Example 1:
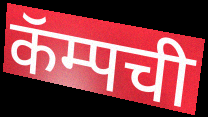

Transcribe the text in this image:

कॅम्पची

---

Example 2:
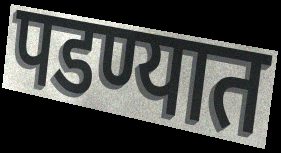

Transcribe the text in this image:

पडण्यात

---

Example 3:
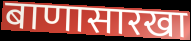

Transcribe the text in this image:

बाणासारखा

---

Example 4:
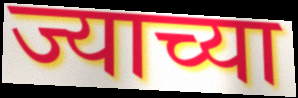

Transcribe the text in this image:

ज्याच्या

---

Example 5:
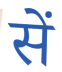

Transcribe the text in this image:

सें